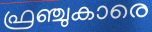
ഫ്രഞ്ചുകാരെ